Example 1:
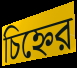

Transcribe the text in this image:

চিহ্নের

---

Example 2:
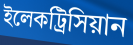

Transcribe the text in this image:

ইলেকট্রিসিয়ান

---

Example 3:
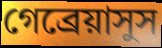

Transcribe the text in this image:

গেব্রেয়াসুস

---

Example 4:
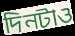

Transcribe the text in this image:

দিনটাও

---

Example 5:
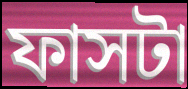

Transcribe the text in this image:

ফাসটা